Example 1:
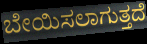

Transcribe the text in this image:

ಬೇಯಿಸಲಾಗುತ್ತದೆ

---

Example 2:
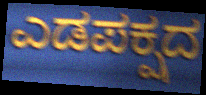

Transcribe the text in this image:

ಎಡಪಕ್ಷದ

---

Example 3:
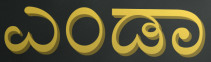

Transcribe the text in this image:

ಎಂಡಾ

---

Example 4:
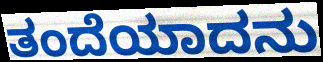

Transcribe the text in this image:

ತಂದೆಯಾದನು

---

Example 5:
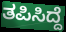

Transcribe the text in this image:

ತಪಿಸಿದ್ದೆ